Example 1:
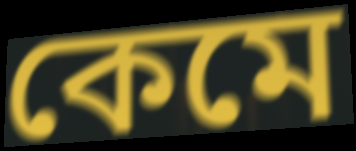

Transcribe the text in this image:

কেমে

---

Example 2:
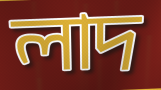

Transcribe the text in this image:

লাদ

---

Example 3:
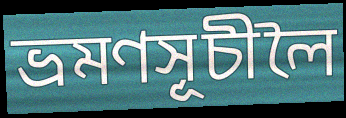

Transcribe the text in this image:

ভ্ৰমণসূচীলৈ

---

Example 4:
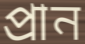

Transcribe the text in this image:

প্ৰান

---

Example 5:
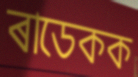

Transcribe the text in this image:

ৰাডেকক